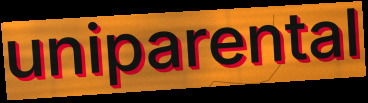
uniparental